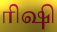
ரிஷி